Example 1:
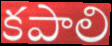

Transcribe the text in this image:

కపాలి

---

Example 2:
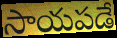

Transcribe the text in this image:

సాయపడే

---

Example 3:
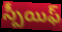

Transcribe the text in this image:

స్పీయిఫ్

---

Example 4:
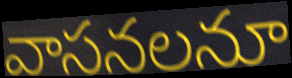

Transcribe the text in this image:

వాసనలనూ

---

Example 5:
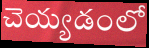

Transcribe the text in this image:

చెయ్యడంలో